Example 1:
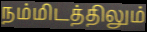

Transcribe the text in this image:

நம்மிடத்திலும்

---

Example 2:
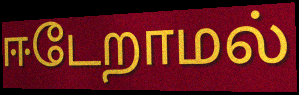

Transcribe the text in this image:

ஈடேறாமல்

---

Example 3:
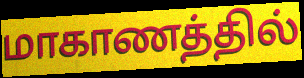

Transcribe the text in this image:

மாகாணத்தில்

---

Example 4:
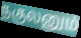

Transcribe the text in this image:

நகுலனும்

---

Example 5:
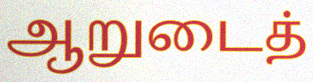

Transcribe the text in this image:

ஆறுடைத்